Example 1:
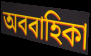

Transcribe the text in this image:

অববাহিকা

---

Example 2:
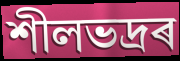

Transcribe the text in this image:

শীলভদ্ৰৰ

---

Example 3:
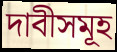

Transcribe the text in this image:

দাবীসমূহ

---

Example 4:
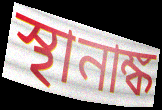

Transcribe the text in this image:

স্থানাঙ্ক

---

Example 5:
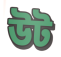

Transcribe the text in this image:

উট